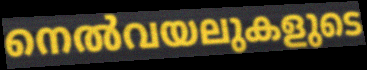
നെൽവയലുകളുടെ